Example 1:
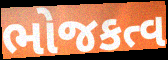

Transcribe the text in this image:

ભોજકત્વ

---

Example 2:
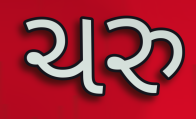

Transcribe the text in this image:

ચરુ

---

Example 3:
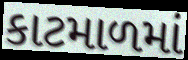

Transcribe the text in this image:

કાટમાળમાં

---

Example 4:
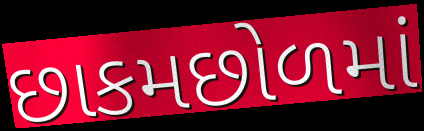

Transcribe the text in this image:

છાકમછોળમાં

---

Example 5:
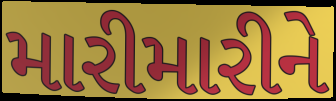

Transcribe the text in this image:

મારીમારીને